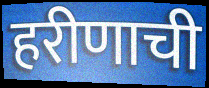
हरीणाची